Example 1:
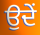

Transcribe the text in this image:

ਉਦੇਂ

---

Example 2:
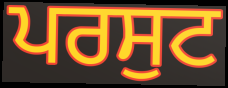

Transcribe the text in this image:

ਪਰਸੁਟ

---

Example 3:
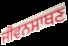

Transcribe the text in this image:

ਜੀਵਨਸਾਥਣ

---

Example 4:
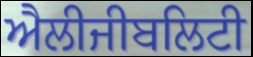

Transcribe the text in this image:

ਐਲੀਜੀਬਲਿਟੀ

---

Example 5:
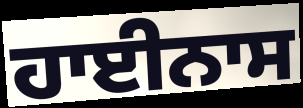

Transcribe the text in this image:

ਹਾਈਨਾਸ